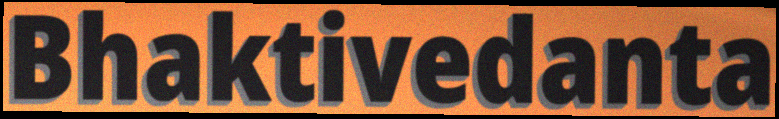
Bhaktivedanta